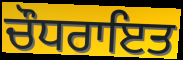
ਚੌਧਰਾਇਤ